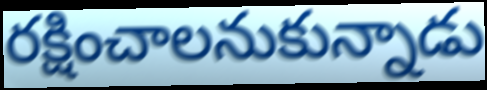
రక్షించాలనుకున్నాడు